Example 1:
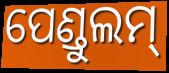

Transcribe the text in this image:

ପେଣ୍ଡୁଲମ୍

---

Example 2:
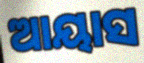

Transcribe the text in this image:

ଆୟାସ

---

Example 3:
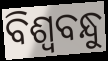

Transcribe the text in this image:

ବିଶ୍ୱବନ୍ଧୁ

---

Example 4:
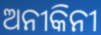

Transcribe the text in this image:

ଅନୀକିନୀ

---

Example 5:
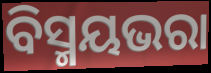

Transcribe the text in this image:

ବିସ୍ମୟଭରା